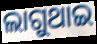
ଲାଗୁଥାଇ